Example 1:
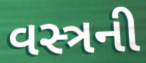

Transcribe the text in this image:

વસ્ત્રની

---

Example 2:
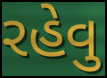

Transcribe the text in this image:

રહેવુ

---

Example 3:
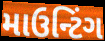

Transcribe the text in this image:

માઉન્ટિંગ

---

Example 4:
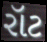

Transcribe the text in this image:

રૉટ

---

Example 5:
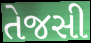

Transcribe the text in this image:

તેજસી